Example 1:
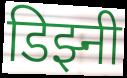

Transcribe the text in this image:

डिझ्नी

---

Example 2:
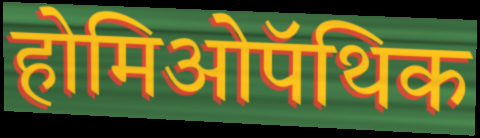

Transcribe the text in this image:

होमिओपॅथिक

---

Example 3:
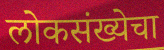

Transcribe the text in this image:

लोकसंख्येचा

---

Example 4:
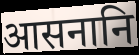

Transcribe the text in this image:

आसनानि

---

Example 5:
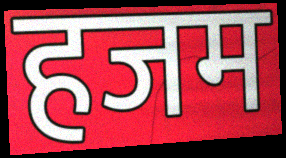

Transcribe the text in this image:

हजम